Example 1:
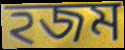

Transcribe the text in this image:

হজম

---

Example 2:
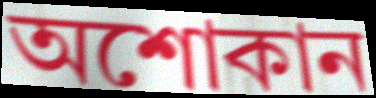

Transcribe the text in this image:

অশোকান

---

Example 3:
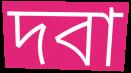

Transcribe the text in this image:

দবা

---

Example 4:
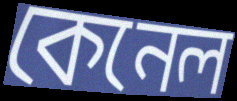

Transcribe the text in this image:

কেনেল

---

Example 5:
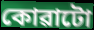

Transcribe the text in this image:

কোৱাটো